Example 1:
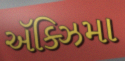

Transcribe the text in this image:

ઍક્ઝિમા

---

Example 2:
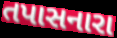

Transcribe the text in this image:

તપાસનારા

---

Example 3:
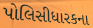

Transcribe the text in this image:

પોલિસીધારકના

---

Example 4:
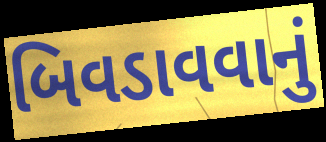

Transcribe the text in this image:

બિવડાવવાનું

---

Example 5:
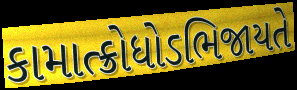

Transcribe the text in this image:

કામાત્ક્રોધોઽભિજાયતે